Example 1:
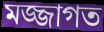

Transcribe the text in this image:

মজ্জাগত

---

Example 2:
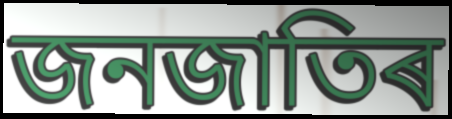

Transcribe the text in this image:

জনজাতিৰ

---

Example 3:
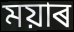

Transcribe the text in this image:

ময়াৰ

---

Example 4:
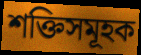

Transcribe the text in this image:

শক্তিসমূহক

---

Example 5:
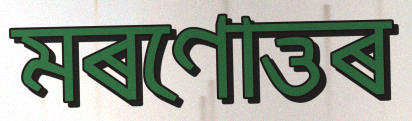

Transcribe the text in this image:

মৰণোত্তৰ